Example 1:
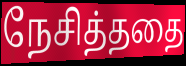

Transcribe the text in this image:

நேசித்ததை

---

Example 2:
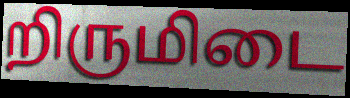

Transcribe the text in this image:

றிருமிடை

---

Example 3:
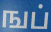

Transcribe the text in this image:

ஙப்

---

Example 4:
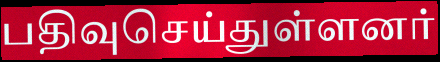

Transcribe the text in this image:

பதிவுசெய்துள்ளனர்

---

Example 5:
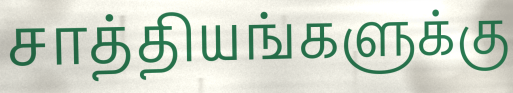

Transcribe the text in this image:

சாத்தியங்களுக்கு